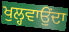
ਖੁਲ੍ਹਵਾਉਂਦਾ